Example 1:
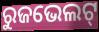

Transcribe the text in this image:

ରୁଜଭେଲଟ୍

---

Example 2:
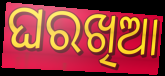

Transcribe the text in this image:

ଘରଖିଆ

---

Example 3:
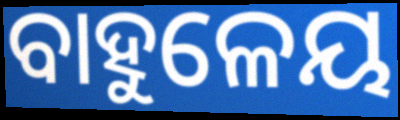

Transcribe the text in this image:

ବାହୁଳେୟ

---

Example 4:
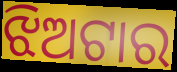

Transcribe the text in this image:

ଝିଅଟାର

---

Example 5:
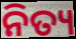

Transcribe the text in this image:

ନିତ୍ୟ